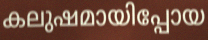
കലുഷമായിപ്പോയ